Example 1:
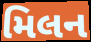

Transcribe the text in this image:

મિલન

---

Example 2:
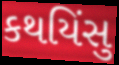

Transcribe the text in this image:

કથયિંસુ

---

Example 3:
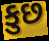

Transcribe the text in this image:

કુછ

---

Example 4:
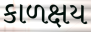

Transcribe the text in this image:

કાળક્ષય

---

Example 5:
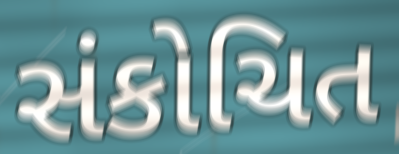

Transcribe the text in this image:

સંકોચિત